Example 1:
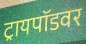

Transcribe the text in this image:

ट्रायपॉडवर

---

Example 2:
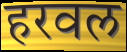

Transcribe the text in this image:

हरवल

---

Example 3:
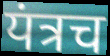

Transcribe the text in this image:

यंत्रच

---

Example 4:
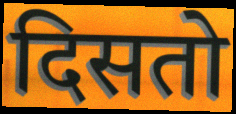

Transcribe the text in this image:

दिसतो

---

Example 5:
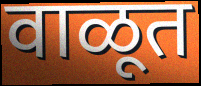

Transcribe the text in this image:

वाळूत